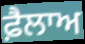
ਫ਼ੈਲਾਅ